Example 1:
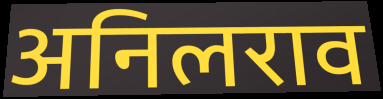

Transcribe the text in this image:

अनिलराव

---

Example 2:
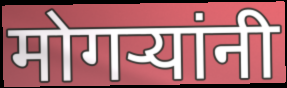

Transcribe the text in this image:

मोगऱ्यांनी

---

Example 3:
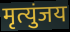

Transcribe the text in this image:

मृत्युंजय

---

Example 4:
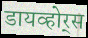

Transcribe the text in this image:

डायव्होर्स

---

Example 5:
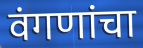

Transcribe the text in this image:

वंगणांचा